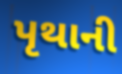
પૃથાની